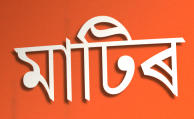
মাটিৰ